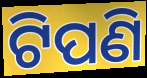
ଟିପଣି